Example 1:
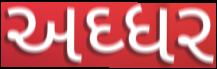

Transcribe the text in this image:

અઘ્ધર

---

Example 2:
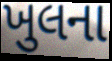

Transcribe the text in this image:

ખુલના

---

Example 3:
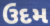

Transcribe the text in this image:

ઉદમ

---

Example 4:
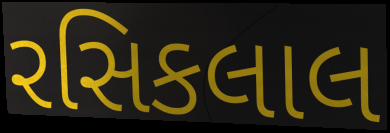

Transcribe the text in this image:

રસિકલાલ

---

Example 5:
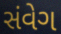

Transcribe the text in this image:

સંવેગ